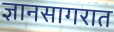
ज्ञानसागरात